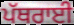
ਪੱਥਰਾਈ